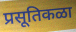
प्रसूतिकळा